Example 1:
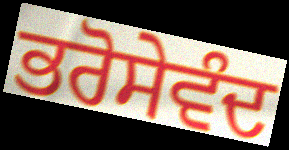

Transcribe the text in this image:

ਭਰੋਸੇਵੰਦ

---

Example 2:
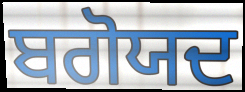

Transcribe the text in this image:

ਬਗੋਯਦ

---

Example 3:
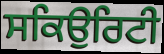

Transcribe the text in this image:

ਸਕਿਉਰਿਟੀ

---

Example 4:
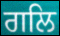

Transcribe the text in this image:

ਗਲਿ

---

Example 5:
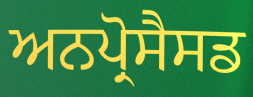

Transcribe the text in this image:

ਅਨਪ੍ਰੋਸੈਸਡ